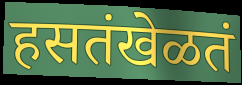
हसतंखेळतं